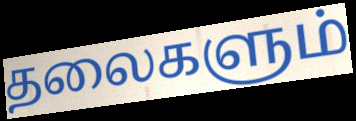
தலைகளும்